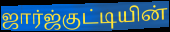
ஜார்ஜ்குட்டியின்